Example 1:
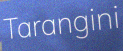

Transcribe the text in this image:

Tarangini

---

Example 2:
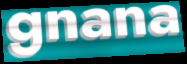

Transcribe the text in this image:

gnana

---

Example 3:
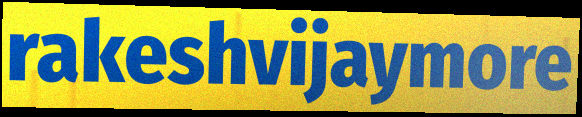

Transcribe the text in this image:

rakeshvijaymore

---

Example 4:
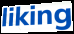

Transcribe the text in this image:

liking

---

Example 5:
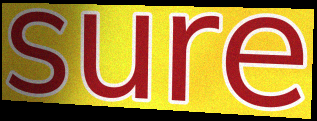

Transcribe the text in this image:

sure